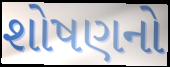
શોષણનો